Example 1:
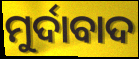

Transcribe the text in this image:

ମୁର୍ଦାବାଦ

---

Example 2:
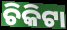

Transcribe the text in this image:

ଚିକିଟା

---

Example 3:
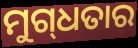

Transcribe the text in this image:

ମୁଗ୍‍ଧତାର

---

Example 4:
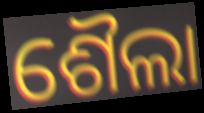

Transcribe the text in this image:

ଶୈଲା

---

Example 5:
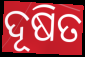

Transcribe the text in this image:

ଦୂଷିତ